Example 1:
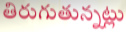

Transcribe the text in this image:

తిరుగుతున్నట్లు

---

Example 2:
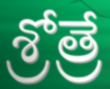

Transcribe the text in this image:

శ్రోత్రే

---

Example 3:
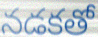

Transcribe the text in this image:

నడకతో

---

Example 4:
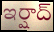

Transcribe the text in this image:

ఇర్షాద్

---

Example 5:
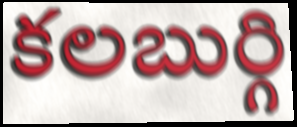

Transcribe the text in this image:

కలబుర్గి